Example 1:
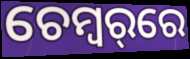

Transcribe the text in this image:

ଚେମ୍ବର୍‌ରେ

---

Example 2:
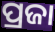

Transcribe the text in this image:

ପ୍ରଜା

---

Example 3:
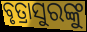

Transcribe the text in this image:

ବୃତ୍ରାସୁରଙ୍କୁ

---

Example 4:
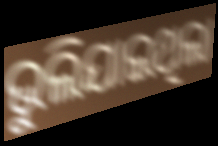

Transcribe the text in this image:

ଭୁଲିଯାଇଥିଲା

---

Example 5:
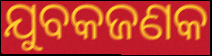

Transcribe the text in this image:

ଯୁବକଜଣକ